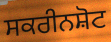
ਸਕਰੀਨਸ਼ੋਟ